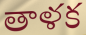
తాళక